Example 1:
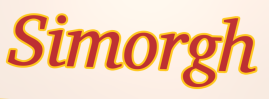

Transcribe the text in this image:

Simorgh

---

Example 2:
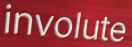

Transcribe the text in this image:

involute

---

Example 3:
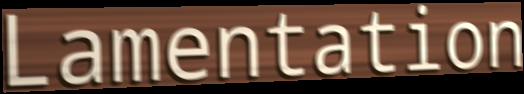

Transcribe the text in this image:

Lamentation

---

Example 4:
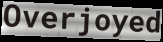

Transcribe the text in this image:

Overjoyed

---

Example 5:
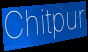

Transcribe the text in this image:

Chitpur